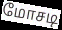
மோசடி